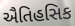
ઐતિહસિક